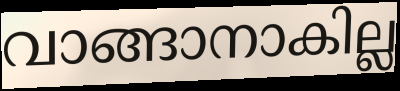
വാങ്ങാനാകില്ല